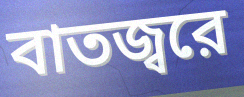
বাতজ্বরে